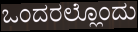
ಒಂದರಲ್ಲೊಂದು